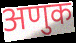
अणुक